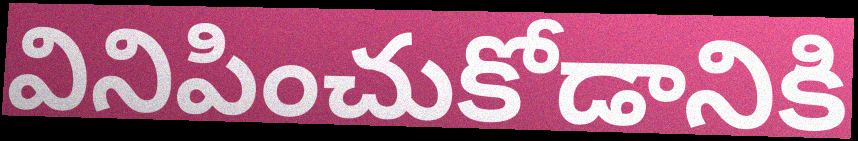
వినిపించుకోడానికి